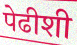
पेढीशी